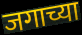
जगाच्या